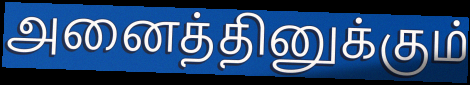
அனைத்தினுக்கும்